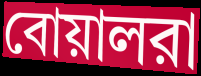
বোয়ালরা